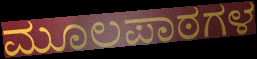
ಮೂಲಪಾಠಗಳ